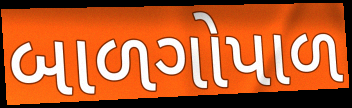
બાળગોપાળ